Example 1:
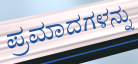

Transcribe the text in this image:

ಪ್ರಮಾದಗಳನ್ನು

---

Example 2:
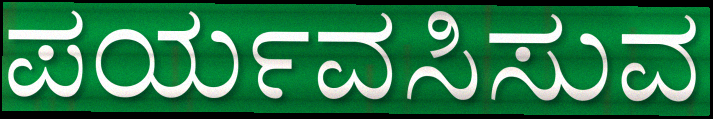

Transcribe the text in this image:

ಪರ್ಯವಸಿಸುವ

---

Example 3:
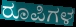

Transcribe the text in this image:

ರೂಪಿಗಳ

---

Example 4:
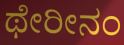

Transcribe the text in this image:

ಥೇರೀನಂ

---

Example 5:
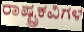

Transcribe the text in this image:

ರಾಷ್ಟ್ರಕವಿಗಳ